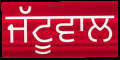
ਜੱਟੂਵਾਲ